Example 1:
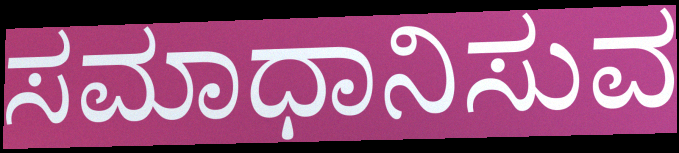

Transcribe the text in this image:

ಸಮಾಧಾನಿಸುವ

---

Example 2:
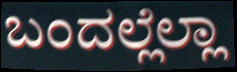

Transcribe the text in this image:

ಬಂದಲ್ಲೆಲ್ಲಾ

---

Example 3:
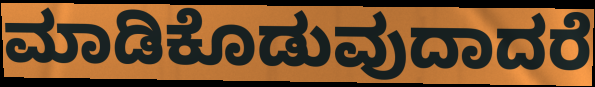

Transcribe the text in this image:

ಮಾಡಿಕೊಡುವುದಾದರೆ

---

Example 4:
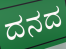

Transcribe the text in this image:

ದನದ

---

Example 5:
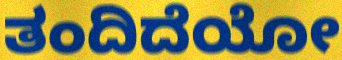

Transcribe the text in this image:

ತಂದಿದೆಯೋ